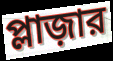
প্লাজ়ার